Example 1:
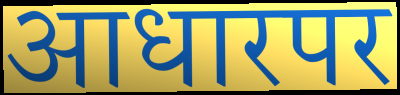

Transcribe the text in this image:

आधारपर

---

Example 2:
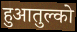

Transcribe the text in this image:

हुआतुल्को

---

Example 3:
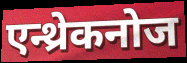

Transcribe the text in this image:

एन्थ्रेकनोज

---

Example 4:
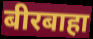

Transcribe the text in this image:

बीरबाहा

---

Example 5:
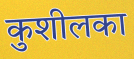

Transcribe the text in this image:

कुशीलका